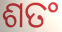
ଶତଂ